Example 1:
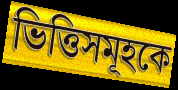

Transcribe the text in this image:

ভিত্তিসমূহকে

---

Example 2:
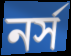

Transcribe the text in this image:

নর্স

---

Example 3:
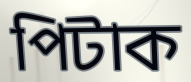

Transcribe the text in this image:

পিটাক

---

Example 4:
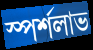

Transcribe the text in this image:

স্পর্শলাভ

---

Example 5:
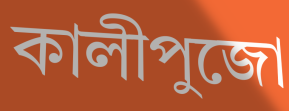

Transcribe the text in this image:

কালীপুজো